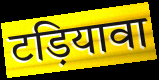
टड़ियावा